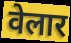
वेलार